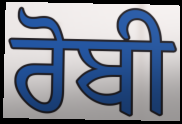
ਰੋਬੀ